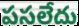
పసలేదు